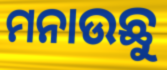
ମନାଉଛୁ